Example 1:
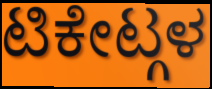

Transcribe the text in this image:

ಟಿಕೇಟ್ಗಳ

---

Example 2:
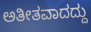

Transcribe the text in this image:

ಅತೀತವಾದದ್ದು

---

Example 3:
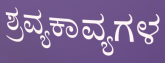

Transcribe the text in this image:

ಶ್ರವ್ಯಕಾವ್ಯಗಳ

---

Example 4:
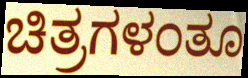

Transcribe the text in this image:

ಚಿತ್ರಗಳಂತೂ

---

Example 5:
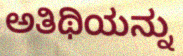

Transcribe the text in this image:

ಅತಿಥಿಯನ್ನು